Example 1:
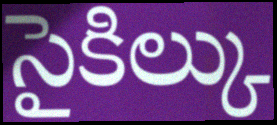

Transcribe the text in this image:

సైకిల్కు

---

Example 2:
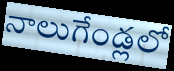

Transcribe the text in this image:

నాలుగేండ్లలో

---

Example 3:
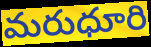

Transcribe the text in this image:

మరుధూరి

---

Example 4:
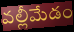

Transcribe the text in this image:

వల్లీమేడం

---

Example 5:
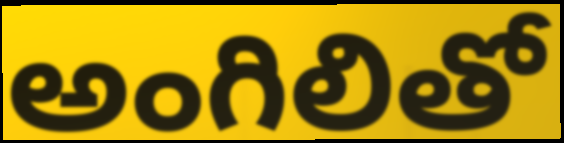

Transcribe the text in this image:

అంగిలితో